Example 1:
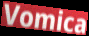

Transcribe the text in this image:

Vomica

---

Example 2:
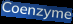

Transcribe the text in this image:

Coenzyme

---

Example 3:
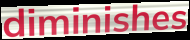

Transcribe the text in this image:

diminishes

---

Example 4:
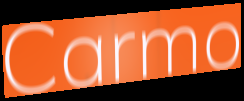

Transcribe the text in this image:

Carmo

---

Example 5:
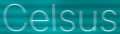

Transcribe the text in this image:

Celsus